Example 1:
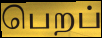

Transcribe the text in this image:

பெறப்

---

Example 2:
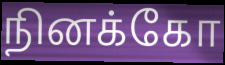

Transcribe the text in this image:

நினக்கோ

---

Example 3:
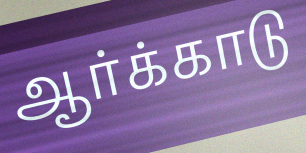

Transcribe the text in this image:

ஆர்க்காடு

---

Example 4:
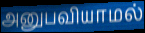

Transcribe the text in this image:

அனுபவியாமல்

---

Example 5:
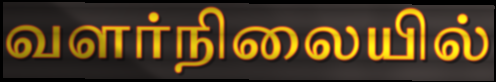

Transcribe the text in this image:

வளர்நிலையில்